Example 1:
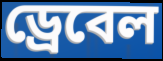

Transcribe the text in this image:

ড্রেবেল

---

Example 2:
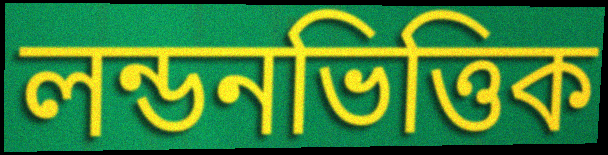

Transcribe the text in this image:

লন্ডনভিত্তিক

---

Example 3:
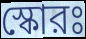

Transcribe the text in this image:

স্কোরঃ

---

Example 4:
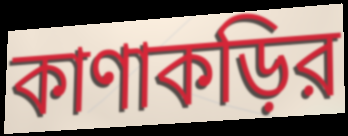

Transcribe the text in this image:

কাণাকড়ির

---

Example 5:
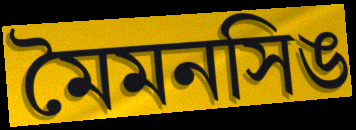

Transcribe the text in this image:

মৈমনসিঙ